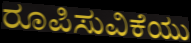
ರೂಪಿಸುವಿಕೆಯು